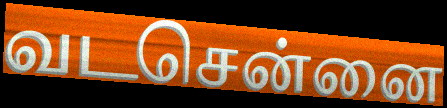
வடசென்னை